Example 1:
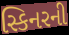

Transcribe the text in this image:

સ્કિનરની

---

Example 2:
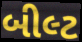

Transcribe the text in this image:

બીલ્ટ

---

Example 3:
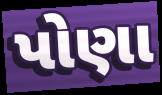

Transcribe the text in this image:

પોણા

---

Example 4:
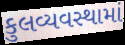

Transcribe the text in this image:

કુલવ્યવસ્થામાં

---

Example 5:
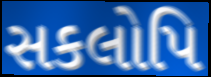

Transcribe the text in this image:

સકલોપિ